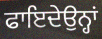
ਫਾਇਦੇਉਨ੍ਹਾਂ